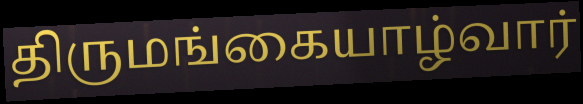
திருமங்கையாழ்வார்